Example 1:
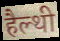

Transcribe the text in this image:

हैल्थी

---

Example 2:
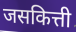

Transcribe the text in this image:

जसकित्ती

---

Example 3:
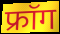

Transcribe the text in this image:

फ्रॉग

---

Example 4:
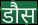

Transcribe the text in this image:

डौस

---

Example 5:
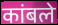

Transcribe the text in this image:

कांबले